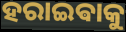
ହରାଇଵାକୁ